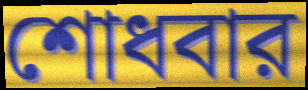
শোধবার